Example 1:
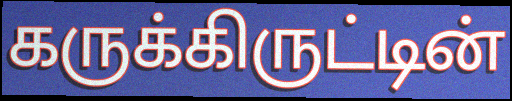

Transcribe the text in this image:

கருக்கிருட்டின்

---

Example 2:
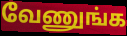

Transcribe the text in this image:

வேணுங்க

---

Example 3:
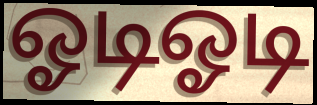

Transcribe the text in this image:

ஓடிஓடி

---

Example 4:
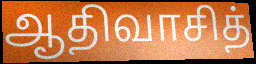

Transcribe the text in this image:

ஆதிவாசித்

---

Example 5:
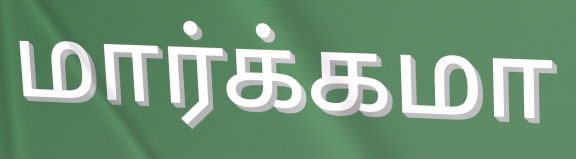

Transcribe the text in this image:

மார்க்கமா